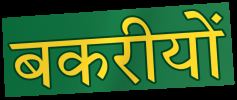
बकरीयों